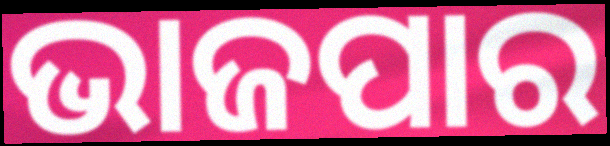
ଭାଜପାର